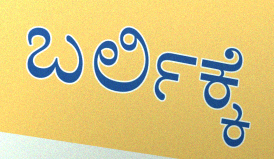
ಬರ್ಲಿಕ್ಕೆ